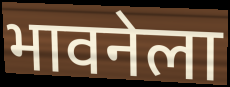
भावनेला